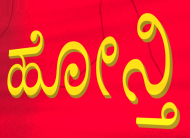
ಹೋನ್ತಿ